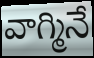
వాగ్మినే